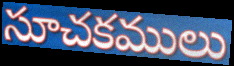
సూచకములు